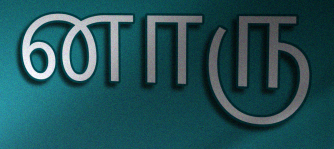
னாரு